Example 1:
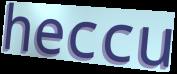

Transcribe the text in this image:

heccu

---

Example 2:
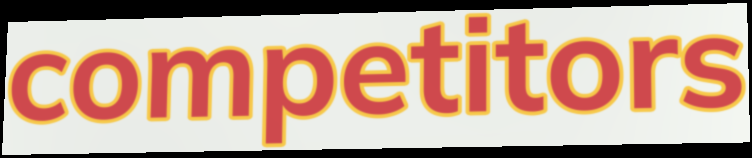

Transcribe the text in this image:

competitors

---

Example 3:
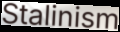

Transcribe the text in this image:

Stalinism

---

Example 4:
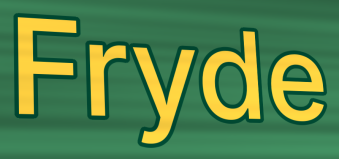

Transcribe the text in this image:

Fryde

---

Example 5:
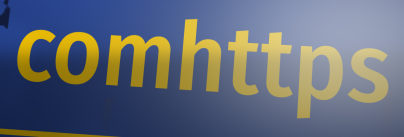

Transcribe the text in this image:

comhttps